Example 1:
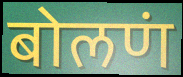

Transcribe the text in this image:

बोलणं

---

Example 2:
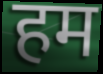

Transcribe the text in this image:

हम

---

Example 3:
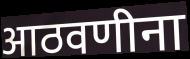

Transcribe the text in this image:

आठवणीना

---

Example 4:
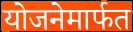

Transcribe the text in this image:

योजनेमार्फत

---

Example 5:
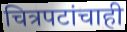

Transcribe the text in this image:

चित्रपटांचाही